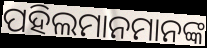
ପହିଲମାନମାନଙ୍କ